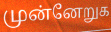
முன்னேறுக